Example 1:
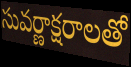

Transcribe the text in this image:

సువర్ణాక్షరాలతో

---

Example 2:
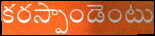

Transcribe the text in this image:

కరస్పాండెంటు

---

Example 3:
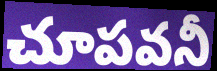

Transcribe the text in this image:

చూపవనీ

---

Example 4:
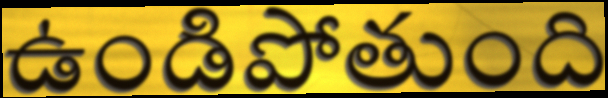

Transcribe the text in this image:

ఉండిపోతుంది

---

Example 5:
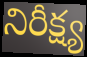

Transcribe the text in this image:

నిరీక్ష్య